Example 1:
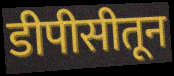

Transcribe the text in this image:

डीपीसीतून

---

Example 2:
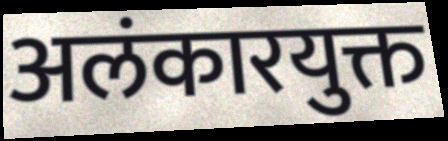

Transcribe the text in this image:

अलंकारयुक्त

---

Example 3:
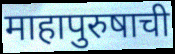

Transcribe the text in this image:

माहापुरुषाची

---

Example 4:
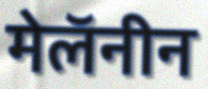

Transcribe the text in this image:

मेलॅनीन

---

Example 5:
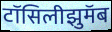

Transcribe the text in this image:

टॉसिलीझुमॅब